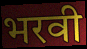
भरवी